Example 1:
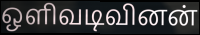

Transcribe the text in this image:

ஒளிவடிவினன்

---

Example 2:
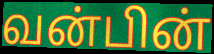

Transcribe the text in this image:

வன்பின்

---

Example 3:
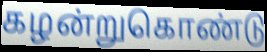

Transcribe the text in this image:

கழன்றுகொண்டு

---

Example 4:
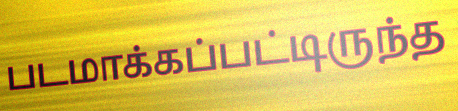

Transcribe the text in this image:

படமாக்கப்பட்டிருந்த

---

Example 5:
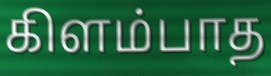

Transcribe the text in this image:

கிளம்பாத